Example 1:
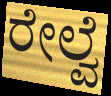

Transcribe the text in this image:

ರೇಲ್ವೆ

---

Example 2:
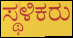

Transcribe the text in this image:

ಸ್ಥಳಿಕರು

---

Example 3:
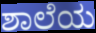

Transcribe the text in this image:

ಶಾಲೆಯ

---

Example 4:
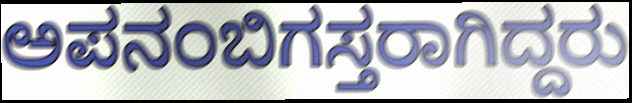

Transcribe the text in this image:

ಅಪನಂಬಿಗಸ್ತರಾಗಿದ್ದರು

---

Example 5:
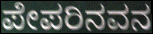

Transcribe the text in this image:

ಪೇಪರಿನವನ